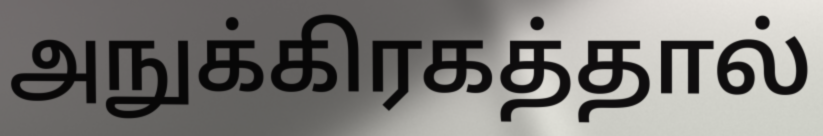
அநுக்கிரகத்தால்